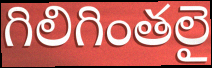
గిలిగింతలై